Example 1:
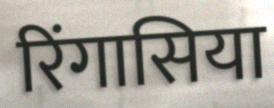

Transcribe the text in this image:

रिंगासिया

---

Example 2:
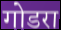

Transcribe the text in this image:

गोडरा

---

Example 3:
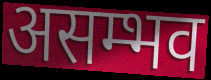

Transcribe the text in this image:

असम्भव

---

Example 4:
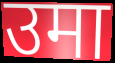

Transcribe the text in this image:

उमा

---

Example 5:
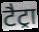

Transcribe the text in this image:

टैट्रा